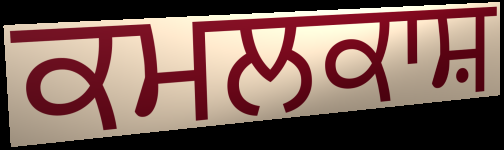
ਕਮਲਕਾਸ਼